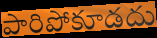
పారిపోకూడదు